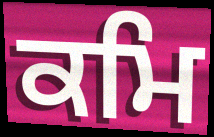
ਕਮਿ